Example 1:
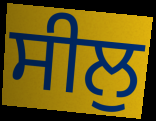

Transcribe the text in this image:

ਸੀਲੁ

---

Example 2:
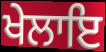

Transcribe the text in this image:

ਖੇਲਾਇ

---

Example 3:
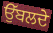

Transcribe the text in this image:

ਉੱਬਲਦੇ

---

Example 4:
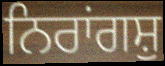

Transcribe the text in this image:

ਨਿਰਾਂਗਸ਼ੁ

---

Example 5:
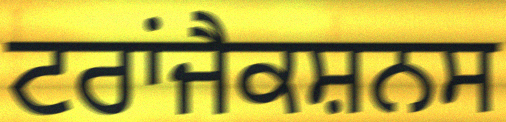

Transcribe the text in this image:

ਟਰਾਂਜੈਕਸ਼ਨਸ